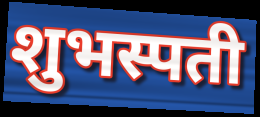
शुभस्पती